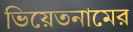
ভিয়েতনামের